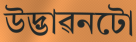
উদ্ভাৱনটো